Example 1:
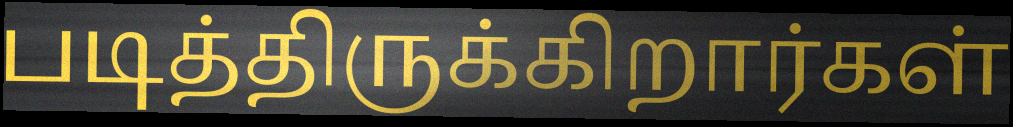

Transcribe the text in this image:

படித்திருக்கிறார்கள்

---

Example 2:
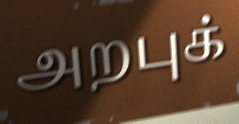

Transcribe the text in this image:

அறபுக்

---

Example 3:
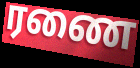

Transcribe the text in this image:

ரணை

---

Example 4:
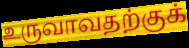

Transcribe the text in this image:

உருவாவதற்குக்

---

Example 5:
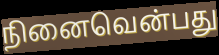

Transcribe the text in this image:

நினைவென்பது